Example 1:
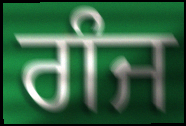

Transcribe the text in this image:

ਗੰਜ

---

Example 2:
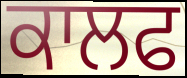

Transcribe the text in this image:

ਕਾਲਫ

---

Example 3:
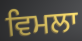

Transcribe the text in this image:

ਵਿਮਲਾ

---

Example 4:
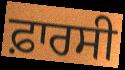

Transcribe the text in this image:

ਫ਼ਾਰਸੀ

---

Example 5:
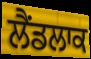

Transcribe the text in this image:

ਲੈਂਡਲਾਕ